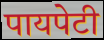
पायपेटी